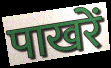
पाखरें